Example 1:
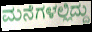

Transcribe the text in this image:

ಮನೆಗಳಲ್ಲಿದ್ದು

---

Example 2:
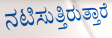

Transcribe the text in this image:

ನಟಿಸುತ್ತಿರುತ್ತಾರೆ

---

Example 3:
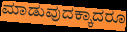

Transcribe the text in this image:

ಮಾಡುವುದಕ್ಕಾದರೂ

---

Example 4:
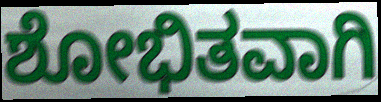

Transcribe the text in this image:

ಶೋಭಿತವಾಗಿ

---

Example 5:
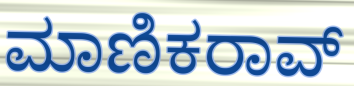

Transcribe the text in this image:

ಮಾಣಿಕರಾವ್